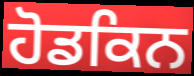
ਹੋਡਕਿਨ